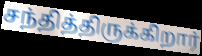
சந்தித்திருக்கிறார்